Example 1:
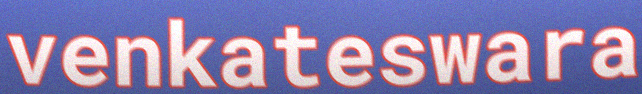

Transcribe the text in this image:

venkateswara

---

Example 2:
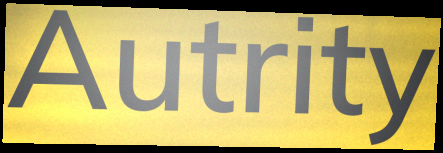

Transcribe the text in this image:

Autrity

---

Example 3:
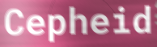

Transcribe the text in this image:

Cepheid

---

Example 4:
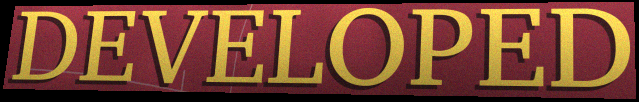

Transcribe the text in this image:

DEVELOPED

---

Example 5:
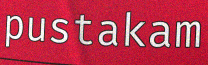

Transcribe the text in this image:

pustakam